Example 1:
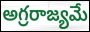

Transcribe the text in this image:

అగ్రరాజ్యమే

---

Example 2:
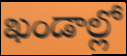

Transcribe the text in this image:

ఖండాల్లో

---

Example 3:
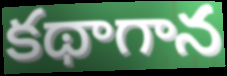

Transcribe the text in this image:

కథాగాన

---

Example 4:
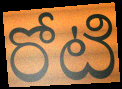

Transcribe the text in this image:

రోటి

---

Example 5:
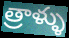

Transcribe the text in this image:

త్రాళ్ళు